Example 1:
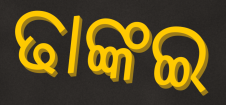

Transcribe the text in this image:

ଢାଙ୍କଇ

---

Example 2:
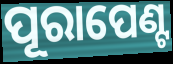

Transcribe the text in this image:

ପୂରାପେଣ୍ଟ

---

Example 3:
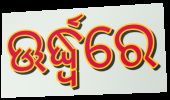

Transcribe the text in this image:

ଊର୍ଦ୍ଧ୍ୱରେ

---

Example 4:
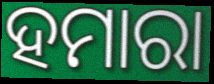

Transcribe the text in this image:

ହମାରା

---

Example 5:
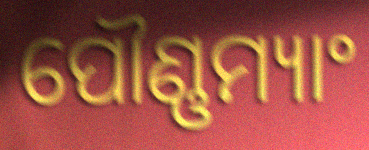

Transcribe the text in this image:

ପୌଣ୍ଣମ୍ୟାଂ